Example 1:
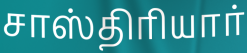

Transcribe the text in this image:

சாஸ்திரியார்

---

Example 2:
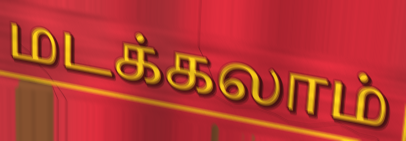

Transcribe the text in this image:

மடக்கலாம்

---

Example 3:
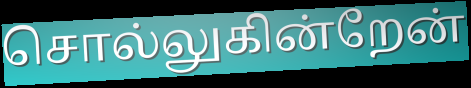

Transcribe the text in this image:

சொல்லுகின்றேன்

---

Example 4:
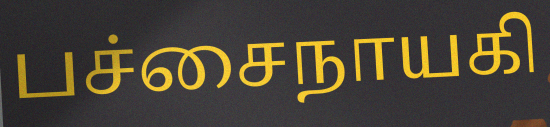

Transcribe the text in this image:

பச்சைநாயகி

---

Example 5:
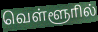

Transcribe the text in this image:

வெள்ளூரில்